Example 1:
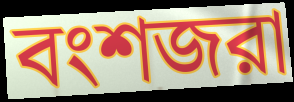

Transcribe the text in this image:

বংশজরা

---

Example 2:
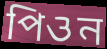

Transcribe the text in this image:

পিওন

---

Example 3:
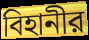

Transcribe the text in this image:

বিহানীর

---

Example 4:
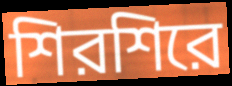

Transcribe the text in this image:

শিরশিরে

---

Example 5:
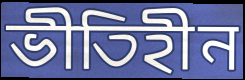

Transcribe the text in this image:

ভীতিহীন